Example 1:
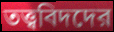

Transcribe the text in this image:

তত্ত্ববিদদের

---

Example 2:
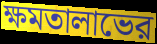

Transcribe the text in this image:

ক্ষমতালাভের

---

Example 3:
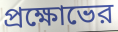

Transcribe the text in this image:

প্রক্ষোভের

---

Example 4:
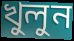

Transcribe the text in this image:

খুলুন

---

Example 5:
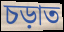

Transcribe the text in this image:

চড়াত